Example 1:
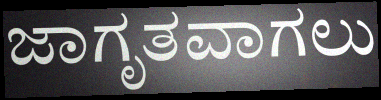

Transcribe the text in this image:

ಜಾಗೃತವಾಗಲು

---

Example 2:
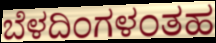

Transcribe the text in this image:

ಬೆಳದಿಂಗಳಂತಹ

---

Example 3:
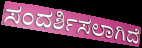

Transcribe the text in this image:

ಸಂದರ್ಶಿಸಲಾಗಿದೆ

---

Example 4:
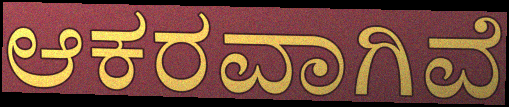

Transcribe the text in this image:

ಆಕರವಾಗಿವೆ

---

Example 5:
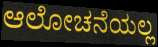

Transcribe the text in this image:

ಆಲೋಚನೆಯಲ್ಲ